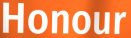
Honour